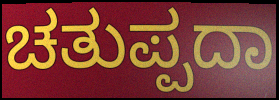
ಚತುಪ್ಪದಾ